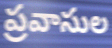
ప్రవాసుల